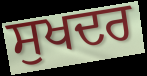
ਸੁਖਦਰ